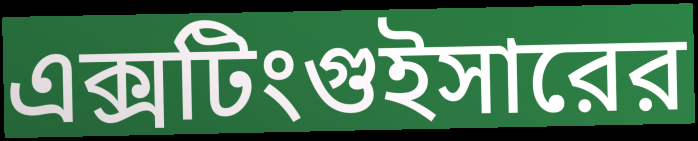
এক্সটিংগুইসারের